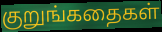
குறுங்கதைகள்